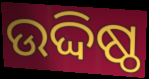
ଉଦ୍ଦିଷ୍ଠ